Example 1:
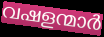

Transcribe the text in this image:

വഷളന്മാർ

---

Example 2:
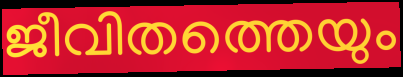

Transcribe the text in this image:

ജീവിതത്തെയും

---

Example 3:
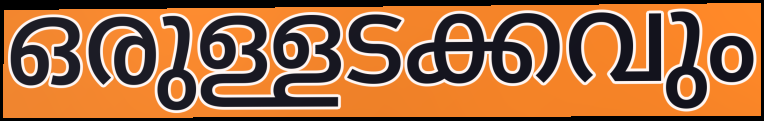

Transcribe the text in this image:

ഒരുള്ളടക്കവും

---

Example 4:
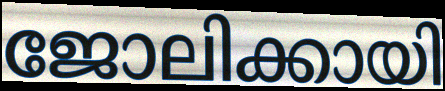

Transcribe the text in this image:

ജോലിക്കായി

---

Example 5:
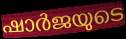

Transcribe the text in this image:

ഷാർജയുടെ